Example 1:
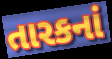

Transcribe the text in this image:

તારકનાં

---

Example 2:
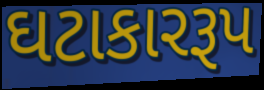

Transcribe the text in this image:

ઘટાકારરૂપ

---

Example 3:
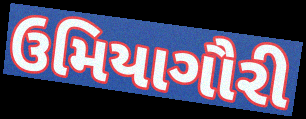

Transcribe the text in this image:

ઉમિયાગૌરી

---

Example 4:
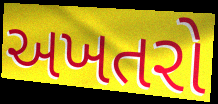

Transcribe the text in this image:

અખતરો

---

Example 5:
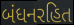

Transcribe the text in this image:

બંધનરહિત